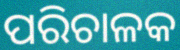
ପରିଚାଳକ